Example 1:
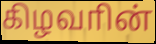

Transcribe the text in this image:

கிழவரின்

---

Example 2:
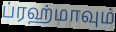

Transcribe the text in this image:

ப்ரஹ்மாவும்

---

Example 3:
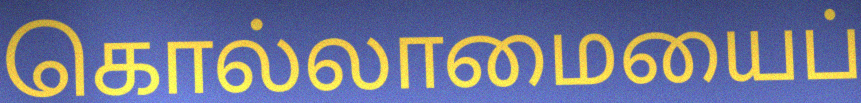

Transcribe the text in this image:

கொல்லாமையைப்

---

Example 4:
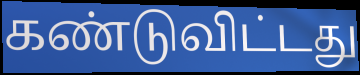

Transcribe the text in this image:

கண்டுவிட்டது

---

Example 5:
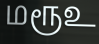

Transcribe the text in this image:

மரூஉ